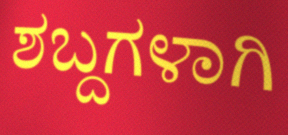
ಶಬ್ದಗಳಾಗಿ